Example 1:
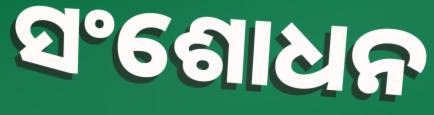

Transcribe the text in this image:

ସଂଶୋଧନ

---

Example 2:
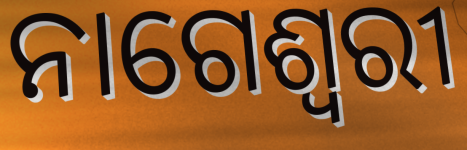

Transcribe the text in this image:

ନାଗେଶ୍ୱରୀ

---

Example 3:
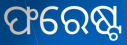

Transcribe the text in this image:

ଫରେଷ୍ଟ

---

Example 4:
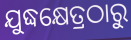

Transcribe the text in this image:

ଯୁଦ୍ଧକ୍ଷେତ୍ରଠାରୁ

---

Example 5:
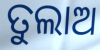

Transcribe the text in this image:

ତୁଲାଅ